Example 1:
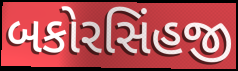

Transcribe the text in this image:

બકોરસિંહજી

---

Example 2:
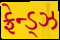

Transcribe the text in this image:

ફ્રેન્ડ્ઝ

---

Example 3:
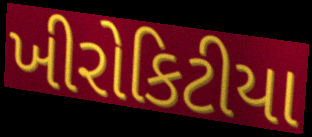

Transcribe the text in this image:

ખીરોકિટીયા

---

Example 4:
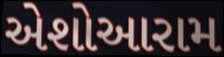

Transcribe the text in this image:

એશોઆરામ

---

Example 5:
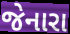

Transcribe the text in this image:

જેનારા